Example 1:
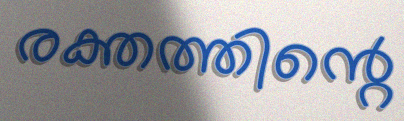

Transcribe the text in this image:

രക്തത്തിന്റെ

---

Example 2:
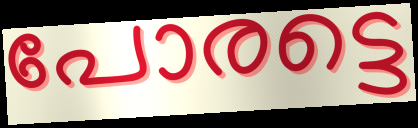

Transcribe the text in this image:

പോരട്ടെ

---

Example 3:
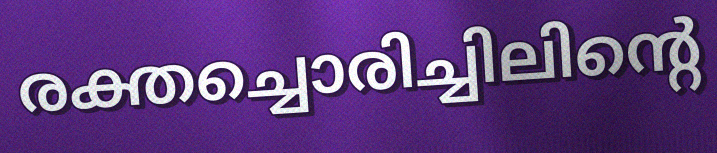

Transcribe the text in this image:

രക്തച്ചൊരിച്ചിലിന്റെ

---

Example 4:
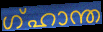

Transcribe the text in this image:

ഗ്ഹാന്ത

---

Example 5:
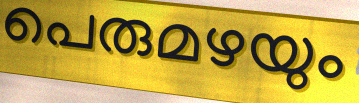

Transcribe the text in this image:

പെരുമഴയും